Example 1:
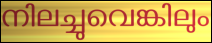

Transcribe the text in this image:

നിലച്ചുവെങ്കിലും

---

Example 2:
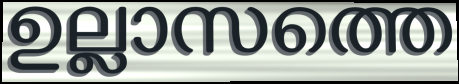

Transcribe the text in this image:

ഉല്ലാസത്തെ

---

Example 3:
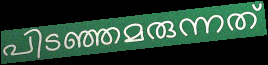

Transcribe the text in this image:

പിടഞ്ഞമരുന്നത്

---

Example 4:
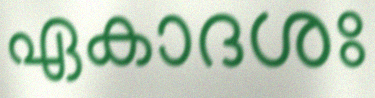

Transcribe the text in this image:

ഏകാദശഃ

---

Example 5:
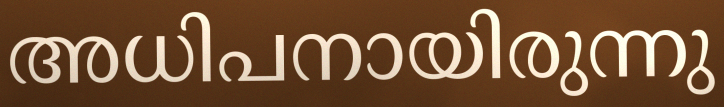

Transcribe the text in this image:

അധിപനായിരുന്നു